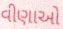
વીણાઓ